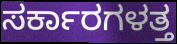
ಸರ್ಕಾರಗಳತ್ತ